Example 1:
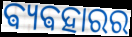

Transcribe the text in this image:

ଵ୍ୟଵହାରର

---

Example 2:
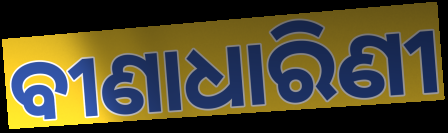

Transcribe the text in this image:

ବୀଣାଧାରିଣୀ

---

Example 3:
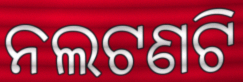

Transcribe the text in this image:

ନଲଟଣଟି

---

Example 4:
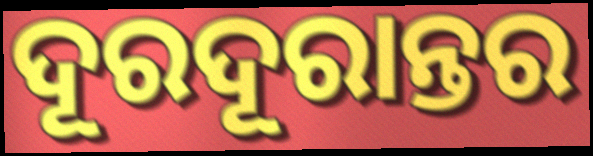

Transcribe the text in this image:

ଦୂରଦୂରାନ୍ତର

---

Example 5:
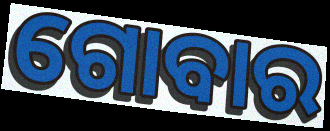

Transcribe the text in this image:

ଗୋବାର